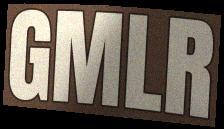
GMLR